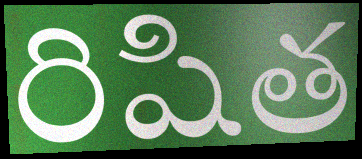
రిషిత